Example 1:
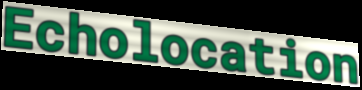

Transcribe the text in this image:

Echolocation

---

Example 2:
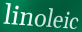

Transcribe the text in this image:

linoleic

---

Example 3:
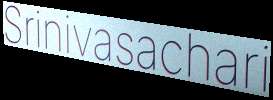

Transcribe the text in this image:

Srinivasachari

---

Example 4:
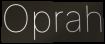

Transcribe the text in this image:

Oprah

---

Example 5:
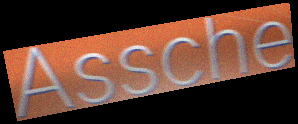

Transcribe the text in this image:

Assche